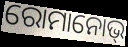
ରୋମାନୋଭ୍